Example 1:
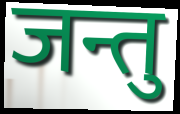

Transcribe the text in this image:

जन्तु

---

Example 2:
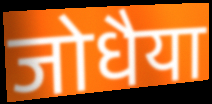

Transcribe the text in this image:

जोधैया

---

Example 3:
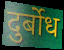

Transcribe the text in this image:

दुर्बोध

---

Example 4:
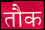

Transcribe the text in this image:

तौक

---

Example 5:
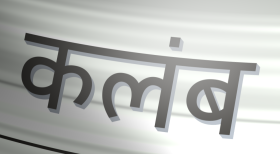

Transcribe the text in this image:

कलंब